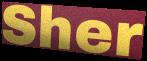
Sher